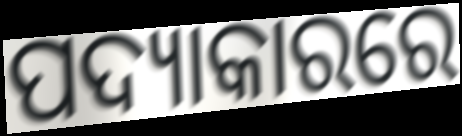
ପଦ୍ଯାକାରରେ